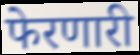
फेरणारी